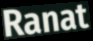
Ranat